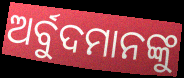
ଅର୍ବୁଦମାନଙ୍କୁ